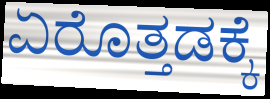
ಏರೊತ್ತಡಕ್ಕೆ